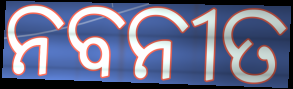
ନବନୀତ